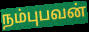
நம்புபவன்